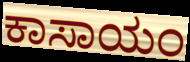
ಕಾಸಾಯಂ